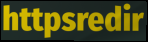
httpsredir